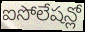
ఐసోలేషన్లో